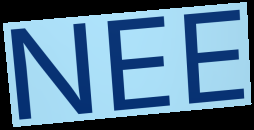
NEE